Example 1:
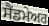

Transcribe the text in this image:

ਸੈਂਡਮੇਅਰ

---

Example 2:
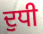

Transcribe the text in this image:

ਦੁਧੀ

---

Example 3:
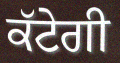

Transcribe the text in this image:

ਕੱਟੇਗੀ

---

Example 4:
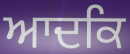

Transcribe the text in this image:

ਆਦਕਿ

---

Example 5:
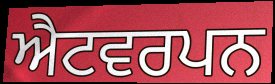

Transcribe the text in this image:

ਐਟਵਰਪਨ